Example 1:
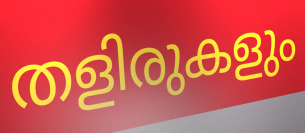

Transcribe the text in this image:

തളിരുകളും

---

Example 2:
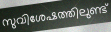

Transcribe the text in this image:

സുവിശേഷത്തിലുണ്ട്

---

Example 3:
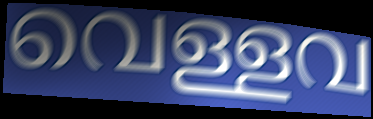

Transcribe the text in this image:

വെള്ളവ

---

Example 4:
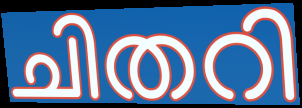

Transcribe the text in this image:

ചിതറി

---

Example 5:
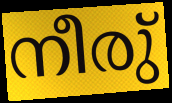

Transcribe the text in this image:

നീരു്